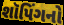
શૉપિંગનો